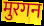
मुरगन